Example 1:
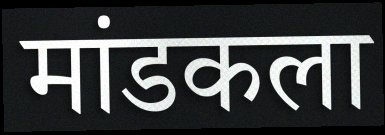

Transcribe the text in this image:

मांडकला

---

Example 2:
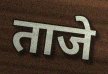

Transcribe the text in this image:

ताजे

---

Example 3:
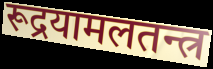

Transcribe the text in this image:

रूद्रयामलतन्त्र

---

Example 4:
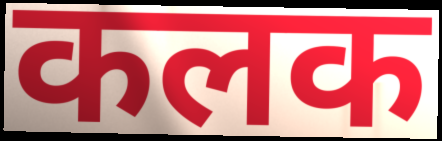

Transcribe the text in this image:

कलक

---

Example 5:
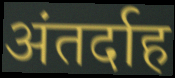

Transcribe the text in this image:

अंतर्दाह